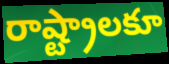
రాష్ట్రాలకూ